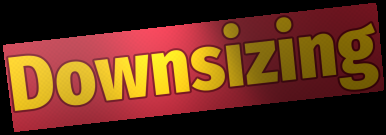
Downsizing